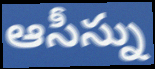
ఆసీస్ను